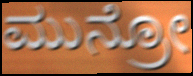
ಮುನ್ರೋ